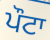
ਪੌਟਾ